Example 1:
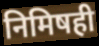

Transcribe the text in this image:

निमिषही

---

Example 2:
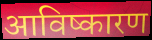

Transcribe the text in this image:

आविष्कारण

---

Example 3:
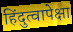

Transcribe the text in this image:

हिंदुत्वापेक्षा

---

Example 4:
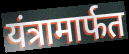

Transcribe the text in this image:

यंत्रामार्फत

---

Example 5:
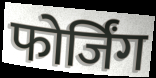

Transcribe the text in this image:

फोर्जिंग